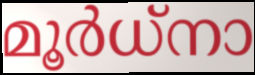
മൂർധ്നാ